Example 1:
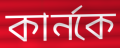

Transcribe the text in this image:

কার্নকে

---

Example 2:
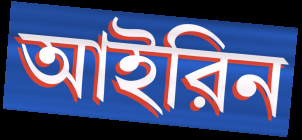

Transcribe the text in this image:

আইরিন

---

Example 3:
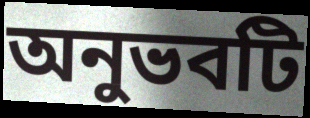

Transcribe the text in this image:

অনুভবটি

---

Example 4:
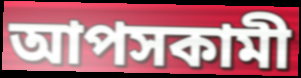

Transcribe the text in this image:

আপসকামী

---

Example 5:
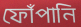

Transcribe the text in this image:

ফোঁপানি